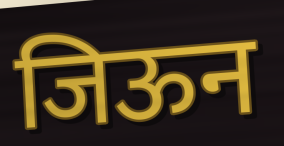
जिऊन